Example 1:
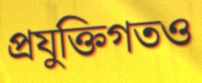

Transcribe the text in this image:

প্রযুক্তিগতও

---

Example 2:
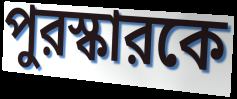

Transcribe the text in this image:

পুরস্কারকে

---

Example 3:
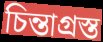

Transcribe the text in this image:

চিন্তাগ্রস্ত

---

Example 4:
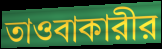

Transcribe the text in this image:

তাওবাকারীর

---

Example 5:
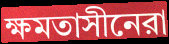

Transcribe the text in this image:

ক্ষমতাসীনেরা